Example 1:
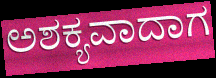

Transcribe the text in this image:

ಅಶಕ್ಯವಾದಾಗ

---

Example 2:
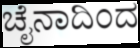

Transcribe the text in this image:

ಚೈನಾದಿಂದ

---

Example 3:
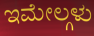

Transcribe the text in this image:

ಇಮೇಲ್ಗಳು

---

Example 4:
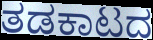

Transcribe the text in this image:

ತಡಕಾಟದ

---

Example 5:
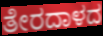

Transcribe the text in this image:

ತೇರದಾಳದ